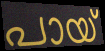
പായ്